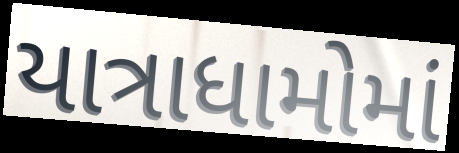
યાત્રાધામોમાં